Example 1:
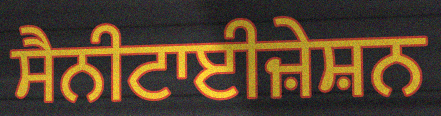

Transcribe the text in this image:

ਸੈਨੀਟਾਈਜ਼ੇਸ਼ਨ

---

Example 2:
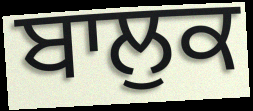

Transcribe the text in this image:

ਬਾਲੁਕ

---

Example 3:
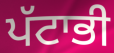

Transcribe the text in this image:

ਪੱਟਾਭੀ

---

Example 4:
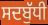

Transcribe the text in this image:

ਸਦਬੁੱਧੀ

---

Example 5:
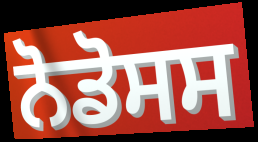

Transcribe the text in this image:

ਨੋਡੋਸਸ